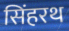
सिंहरथ